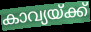
കാവ്യയ്ക്ക്